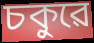
চকুৱে